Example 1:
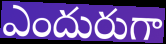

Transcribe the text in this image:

ఎందురుగా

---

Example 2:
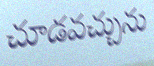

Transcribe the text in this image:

చూడవచ్చును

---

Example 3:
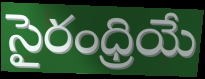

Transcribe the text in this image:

సైరంధ్రియే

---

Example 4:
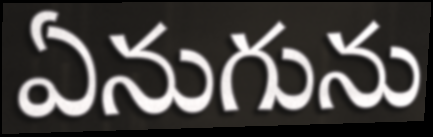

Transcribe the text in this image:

ఏనుగును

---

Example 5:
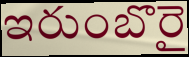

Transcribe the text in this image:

ఇరుంబొరై